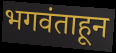
भगवंताहून